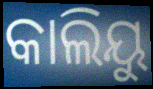
କାଲିୟୁ